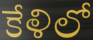
కేళిలో